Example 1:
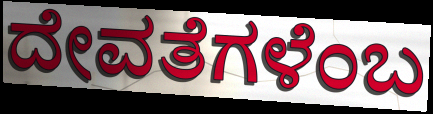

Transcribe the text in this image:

ದೇವತೆಗಳೆಂಬ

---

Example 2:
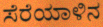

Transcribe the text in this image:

ಸೆರೆಯಾಳಿನ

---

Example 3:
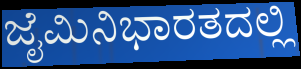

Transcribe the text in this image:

ಜೈಮಿನಿಭಾರತದಲ್ಲಿ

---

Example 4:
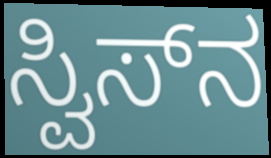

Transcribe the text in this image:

ಸ್ವಿಸ್‌ನ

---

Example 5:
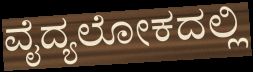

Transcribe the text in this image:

ವೈದ್ಯಲೋಕದಲ್ಲಿ